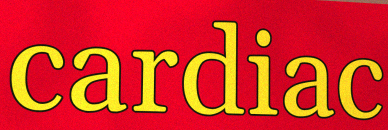
cardiac